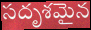
సదృశమైన